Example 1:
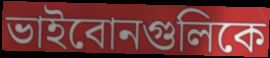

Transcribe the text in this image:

ভাইবোনগুলিকে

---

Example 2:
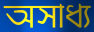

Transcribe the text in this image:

অসাধ্য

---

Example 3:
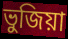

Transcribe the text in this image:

ভুজিয়া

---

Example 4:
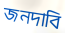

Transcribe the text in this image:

জনদাবি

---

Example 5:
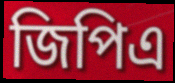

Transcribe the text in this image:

জিপিএ